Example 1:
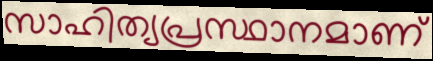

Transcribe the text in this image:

സാഹിത്യപ്രസ്ഥാനമാണ്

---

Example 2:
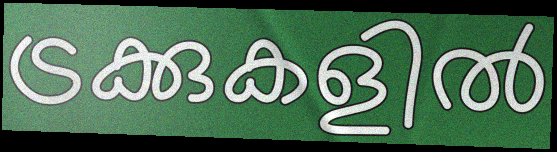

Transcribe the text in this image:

ട്രക്കുകളിൽ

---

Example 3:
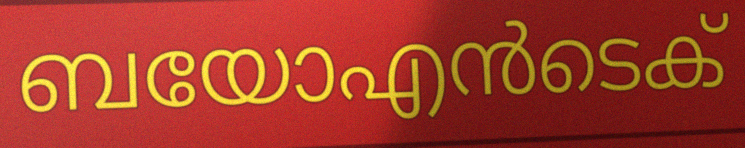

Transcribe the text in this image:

ബയോഎൻടെക്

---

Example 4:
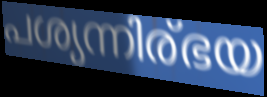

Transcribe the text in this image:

പശ്യന്നിര്ഭയ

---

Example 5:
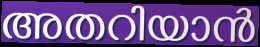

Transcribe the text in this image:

അതറിയാൻ